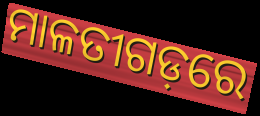
ମାଳତୀଗଡ଼ରେ